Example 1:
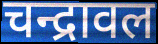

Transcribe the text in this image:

चन्द्रावल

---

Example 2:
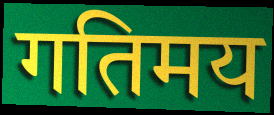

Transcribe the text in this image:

गतिमय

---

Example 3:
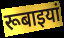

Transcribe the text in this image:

रूबाइयां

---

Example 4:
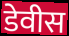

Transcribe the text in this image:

डेवीस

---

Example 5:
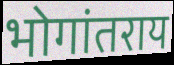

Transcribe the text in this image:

भोगांतराय